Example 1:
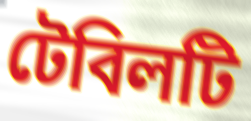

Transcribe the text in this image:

টেবিলটি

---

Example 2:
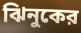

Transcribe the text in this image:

ঝিনুকের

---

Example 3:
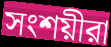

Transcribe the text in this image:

সংশয়ীরা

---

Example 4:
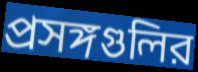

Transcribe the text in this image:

প্রসঙ্গগুলির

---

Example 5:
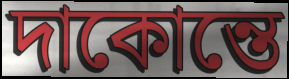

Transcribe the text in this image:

দাকোন্তে